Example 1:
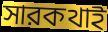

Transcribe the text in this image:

সারকথাই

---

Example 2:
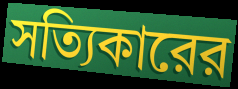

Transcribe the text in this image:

সত্যিকারের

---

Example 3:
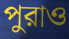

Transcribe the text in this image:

পুরাও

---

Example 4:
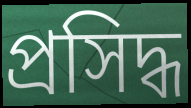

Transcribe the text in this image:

প্রসিদ্ধ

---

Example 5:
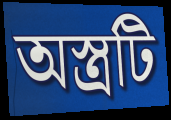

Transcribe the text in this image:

অস্ত্রটি